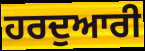
ਹਰਦੁਆਰੀ